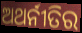
ଅଥର୍ନୀତିର